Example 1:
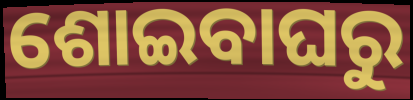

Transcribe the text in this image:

ଶୋଇବାଘରୁ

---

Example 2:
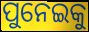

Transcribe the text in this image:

ପୁନେଇକୁ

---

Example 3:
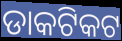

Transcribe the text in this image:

ଡାକଟିକଟ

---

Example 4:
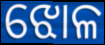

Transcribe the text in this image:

ଝୋଳ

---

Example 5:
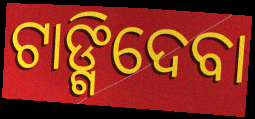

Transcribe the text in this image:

ଟାଙ୍ଗିଦେବା